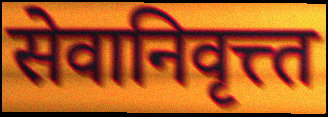
सेवानिवृत्त्त